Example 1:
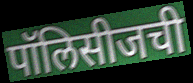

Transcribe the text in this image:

पॉलिसीजची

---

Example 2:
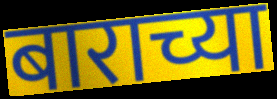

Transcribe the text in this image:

बाराच्या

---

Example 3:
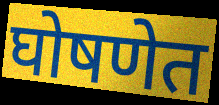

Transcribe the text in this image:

घोषणेत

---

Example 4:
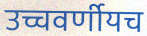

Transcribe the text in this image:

उच्चवर्णीयच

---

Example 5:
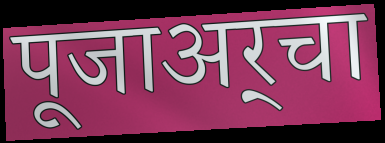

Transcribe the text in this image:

पूजाअर्चा